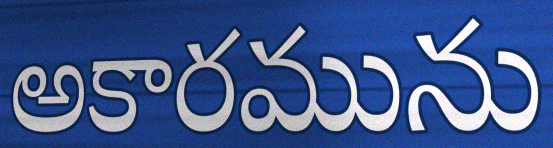
అకారమును